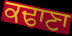
ਕਢਾਣਾ